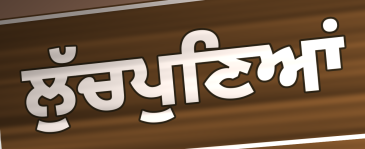
ਲੁੱਚਪੁਣਿਆਂ